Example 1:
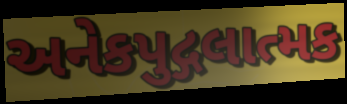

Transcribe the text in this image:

અનેકપુદ્ગલાત્મક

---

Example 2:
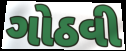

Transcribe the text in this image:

ગોઠવી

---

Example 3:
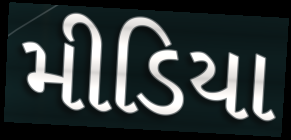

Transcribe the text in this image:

મીડિયા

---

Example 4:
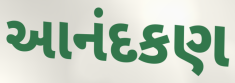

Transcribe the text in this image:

આનંદકણ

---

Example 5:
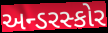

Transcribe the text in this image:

અન્ડરસ્કોર